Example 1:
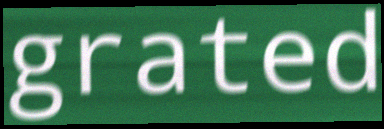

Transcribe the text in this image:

grated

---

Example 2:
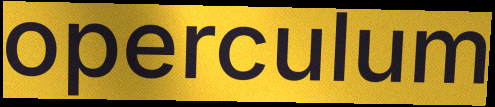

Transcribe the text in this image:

operculum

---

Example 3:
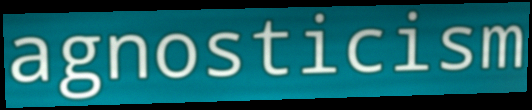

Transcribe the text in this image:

agnosticism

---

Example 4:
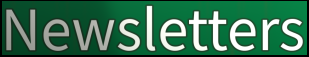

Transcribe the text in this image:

Newsletters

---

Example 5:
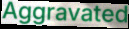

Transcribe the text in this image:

Aggravated